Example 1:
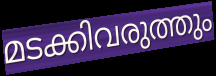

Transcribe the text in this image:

മടക്കിവരുത്തും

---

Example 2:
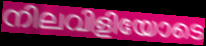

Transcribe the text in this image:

നിലവിളിയോടെ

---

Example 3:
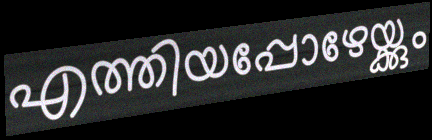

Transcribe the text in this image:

എത്തിയപ്പോഴേയ്ക്കും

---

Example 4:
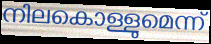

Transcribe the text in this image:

നിലകൊള്ളുമെന്ന്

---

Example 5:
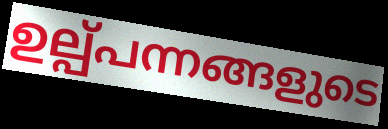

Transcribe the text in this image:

ഉല്പ്പന്നങ്ങളുടെ